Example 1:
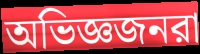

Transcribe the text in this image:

অভিজ্ঞজনরা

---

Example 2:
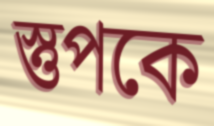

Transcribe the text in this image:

স্তুপকে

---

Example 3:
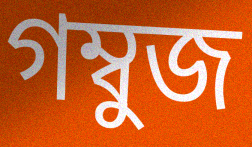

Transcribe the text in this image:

গম্বুজ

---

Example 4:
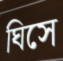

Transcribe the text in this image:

ঘিসে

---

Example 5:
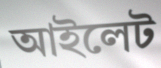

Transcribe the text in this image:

আইলেট